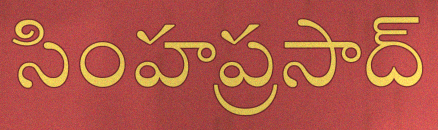
సింహప్రసాద్